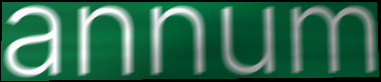
annum